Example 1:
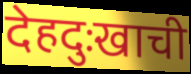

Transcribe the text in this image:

देहदुःखाची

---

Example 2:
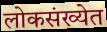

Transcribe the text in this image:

लोकसंख्येत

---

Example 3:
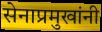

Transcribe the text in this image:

सेनाप्रमुखांनी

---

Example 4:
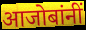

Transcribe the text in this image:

आजोबांनीं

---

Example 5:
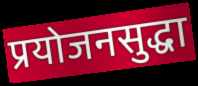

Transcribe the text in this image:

प्रयोजनसुद्धा